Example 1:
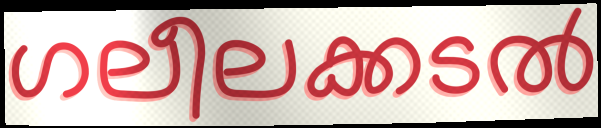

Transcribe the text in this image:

ഗലീലക്കടൽ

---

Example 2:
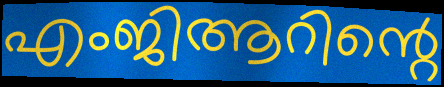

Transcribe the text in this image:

എംജിആറിന്റെ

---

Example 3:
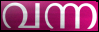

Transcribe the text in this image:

വന്ന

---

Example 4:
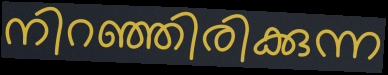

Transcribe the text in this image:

നിറഞ്ഞിരിക്കുന്ന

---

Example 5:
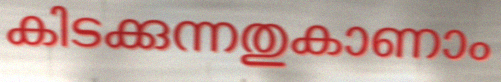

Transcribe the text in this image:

കിടക്കുന്നതുകാണാം